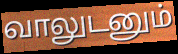
வாலுடனும்